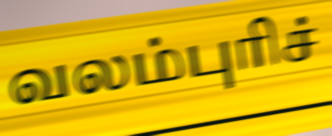
வலம்புரிச்